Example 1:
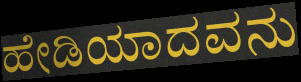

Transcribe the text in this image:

ಹೇಡಿಯಾದವನು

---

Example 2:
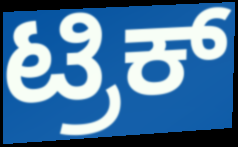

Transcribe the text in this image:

ಟ್ರಿಕ್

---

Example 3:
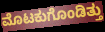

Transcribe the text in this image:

ಮೊಟಕುಗೊಂಡಿತ್ತು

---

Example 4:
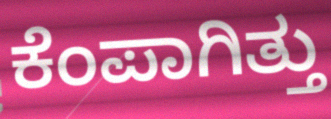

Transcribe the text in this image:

ಕೆಂಪಾಗಿತ್ತು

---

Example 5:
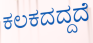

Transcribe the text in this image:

ಕಲಕದದ್ದದೆ